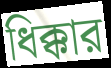
ধিক্কার